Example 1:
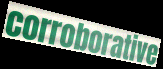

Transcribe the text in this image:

corroborative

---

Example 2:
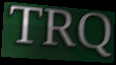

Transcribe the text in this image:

TRQ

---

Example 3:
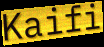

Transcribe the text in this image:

Kaifi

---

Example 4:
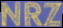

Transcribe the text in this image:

NRZ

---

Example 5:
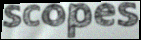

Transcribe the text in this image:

scopes